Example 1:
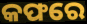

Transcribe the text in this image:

କଫରେ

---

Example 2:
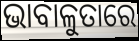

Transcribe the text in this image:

ଭାବାଳୁତାରେ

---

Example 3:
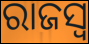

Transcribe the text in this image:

ରାଜସ୍ୱ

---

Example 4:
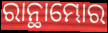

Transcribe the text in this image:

ରାନ୍ଥାମ୍ଭୋର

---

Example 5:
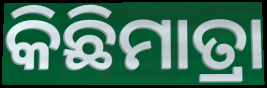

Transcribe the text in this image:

କିଛିମାତ୍ରା